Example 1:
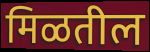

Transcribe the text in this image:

मिळतील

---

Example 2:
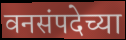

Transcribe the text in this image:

वनसंपदेच्या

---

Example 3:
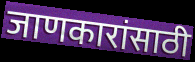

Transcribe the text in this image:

जाणकारांसाठी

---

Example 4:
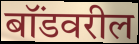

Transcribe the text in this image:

बॉंडवरील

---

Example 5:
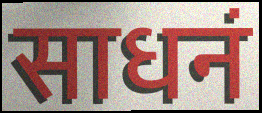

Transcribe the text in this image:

साधनं